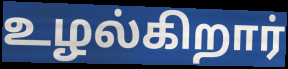
உழல்கிறார்